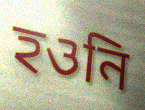
হওনি